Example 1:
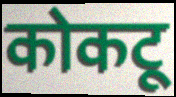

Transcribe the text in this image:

कोकटू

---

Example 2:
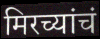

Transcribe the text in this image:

मिरच्यांचं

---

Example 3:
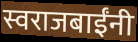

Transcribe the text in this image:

स्वराजबाईंनी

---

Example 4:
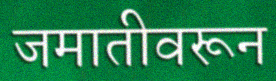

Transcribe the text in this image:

जमातीवरून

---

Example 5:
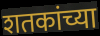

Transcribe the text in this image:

शतकांच्या